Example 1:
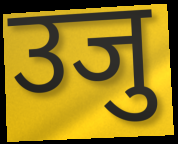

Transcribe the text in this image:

उजु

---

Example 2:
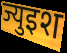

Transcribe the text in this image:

ज्युइश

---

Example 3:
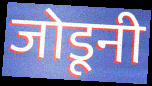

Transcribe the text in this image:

जोडूनी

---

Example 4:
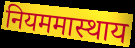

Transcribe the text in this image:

नियममास्थाय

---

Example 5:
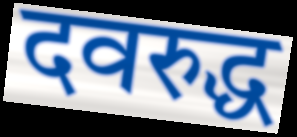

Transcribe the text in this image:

दवरुद्ध